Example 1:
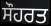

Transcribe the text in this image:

ਸੌਹਰਤ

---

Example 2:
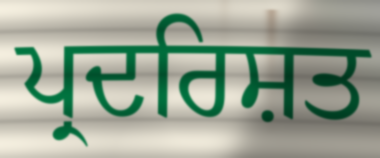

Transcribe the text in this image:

ਪ੍ਰਦਰਿਸ਼ਤ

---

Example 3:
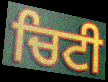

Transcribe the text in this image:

ਚਿਟੀ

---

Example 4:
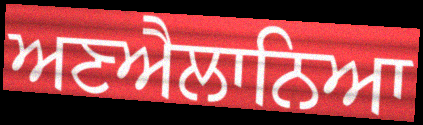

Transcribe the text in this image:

ਅਣਐਲਾਨਿਆ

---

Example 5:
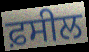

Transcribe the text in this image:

ਫ਼ਸੀਲ